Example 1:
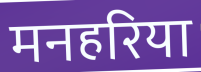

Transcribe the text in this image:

मनहरिया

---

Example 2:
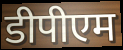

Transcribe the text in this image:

डीपीएम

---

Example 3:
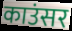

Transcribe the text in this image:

काउंसर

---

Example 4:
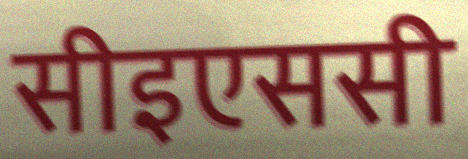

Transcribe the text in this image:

सीइएससी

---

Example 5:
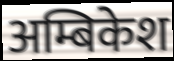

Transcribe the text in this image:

अम्बिकेश